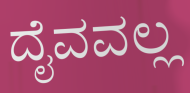
ದೈವವಲ್ಲ